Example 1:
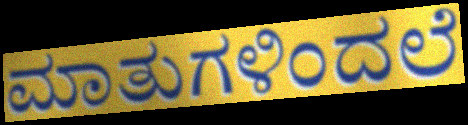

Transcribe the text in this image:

ಮಾತುಗಳಿಂದಲೆ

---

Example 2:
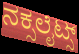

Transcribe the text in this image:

ನಕ್ಸಲೈಟ್ಸ್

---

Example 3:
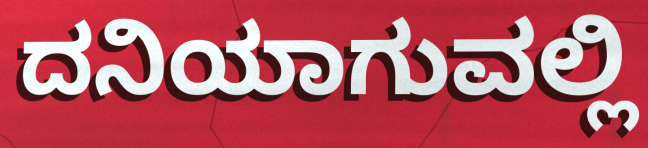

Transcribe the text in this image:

ದನಿಯಾಗುವಲ್ಲಿ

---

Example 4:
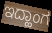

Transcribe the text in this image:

ಇದ್ಹಾಂಗ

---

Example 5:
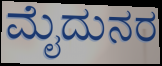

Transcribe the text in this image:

ಮೈದುನರ